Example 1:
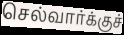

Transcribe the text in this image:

செல்வார்க்குச்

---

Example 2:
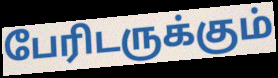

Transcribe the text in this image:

பேரிடருக்கும்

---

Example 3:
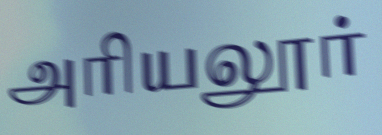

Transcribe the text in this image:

அரியலூர்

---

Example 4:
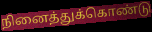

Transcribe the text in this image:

நினைத்துக்கொண்டு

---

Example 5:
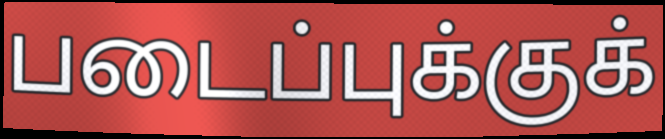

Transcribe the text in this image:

படைப்புக்குக்